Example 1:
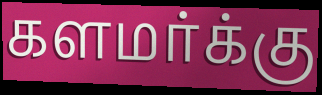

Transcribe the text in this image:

களமர்க்கு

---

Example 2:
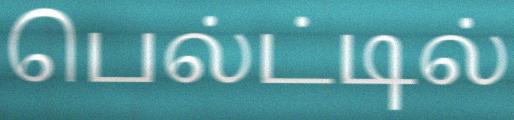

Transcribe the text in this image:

பெல்ட்டில்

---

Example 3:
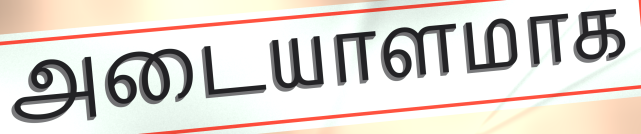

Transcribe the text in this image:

அடையாளமாக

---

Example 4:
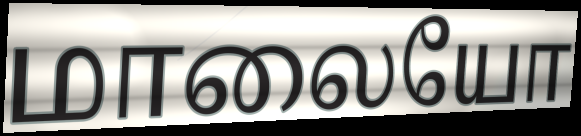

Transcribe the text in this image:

மாலையோ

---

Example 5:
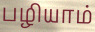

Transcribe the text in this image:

பழியாம்